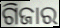
ଗିଜାର